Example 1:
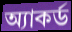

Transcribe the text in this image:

অ্যাকর্ড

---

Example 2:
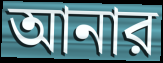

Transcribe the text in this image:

আনার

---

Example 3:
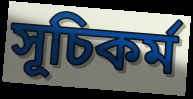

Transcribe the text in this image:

সূচিকর্ম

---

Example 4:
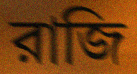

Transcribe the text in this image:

রাজি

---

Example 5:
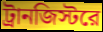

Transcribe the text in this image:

ট্রানজিস্টরে